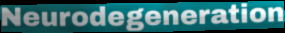
Neurodegeneration